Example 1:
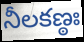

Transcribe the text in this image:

నీలకణ్ఠః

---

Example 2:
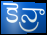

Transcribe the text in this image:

కెన్రా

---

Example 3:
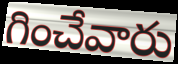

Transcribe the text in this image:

గించేవారు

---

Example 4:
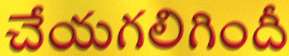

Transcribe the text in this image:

చేయగలిగిందీ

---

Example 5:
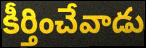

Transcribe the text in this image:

కీర్తించేవాడు